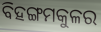
ବିହଙ୍ଗମକୁଳର